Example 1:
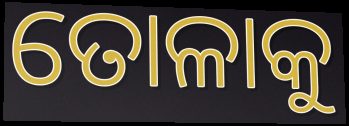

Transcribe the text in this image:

ତୋଳାକୁ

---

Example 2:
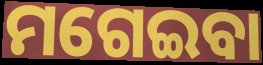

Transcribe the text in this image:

ମଗେଇବା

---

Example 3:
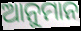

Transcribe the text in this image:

ଆନୁମାନ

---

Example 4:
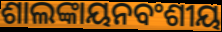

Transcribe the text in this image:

ଶାଲଙ୍କାୟନବଂଶୀୟ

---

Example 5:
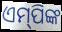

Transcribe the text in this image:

ଏମ୍‌ପିଙ୍କ